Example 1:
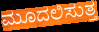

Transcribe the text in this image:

ಮೂದಲಿಸುತ್ತ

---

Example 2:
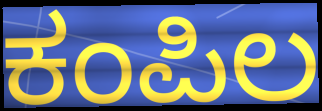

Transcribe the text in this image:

ಕಂಪಿಲ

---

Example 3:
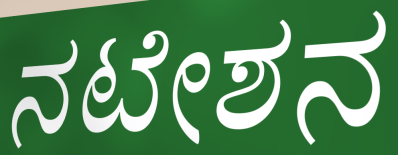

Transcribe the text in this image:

ನಟೇಶನ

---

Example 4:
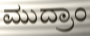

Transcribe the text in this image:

ಮುದ್ರಾಂ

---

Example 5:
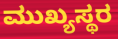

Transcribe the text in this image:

ಮುಖ್ಯಸ್ಥರ